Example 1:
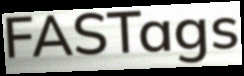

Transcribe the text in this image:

FASTags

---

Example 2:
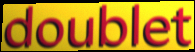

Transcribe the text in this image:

doublet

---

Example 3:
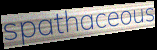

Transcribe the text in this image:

spathaceous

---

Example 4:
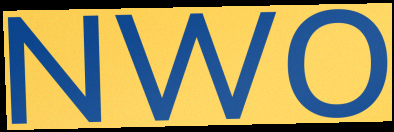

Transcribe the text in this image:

NWO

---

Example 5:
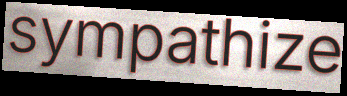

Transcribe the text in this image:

sympathize